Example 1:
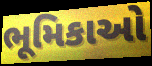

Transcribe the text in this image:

ભૂમિકાઓ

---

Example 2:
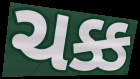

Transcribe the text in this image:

ચક્ક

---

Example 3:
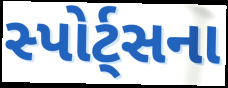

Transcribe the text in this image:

સ્પોર્ટ્સના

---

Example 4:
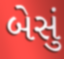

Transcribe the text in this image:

બેસું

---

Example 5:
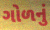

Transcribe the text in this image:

ગોળનું